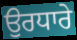
ਉਰਧਾਰੇ